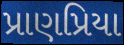
પ્રાણપ્રિયા